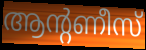
ആന്റണീസ്